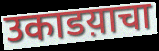
उकाडय़ाचा